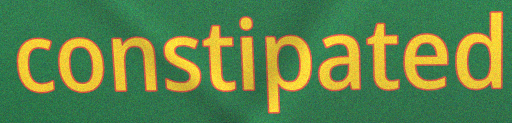
constipated